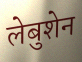
लेबुशेन